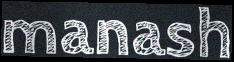
manash